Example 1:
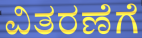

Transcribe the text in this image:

ವಿತರಣೆಗೆ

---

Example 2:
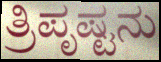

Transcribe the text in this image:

ತ್ರಿಪೃಷ್ಟನು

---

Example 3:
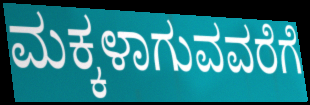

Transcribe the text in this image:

ಮಕ್ಕಳಾಗುವವರೆಗೆ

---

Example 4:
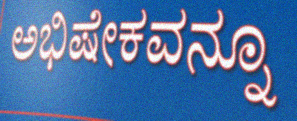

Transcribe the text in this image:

ಅಭಿಷೇಕವನ್ನೂ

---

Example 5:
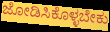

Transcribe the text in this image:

ಜೋಡಿಸಿಕೊಳ್ಳಬೇಕು